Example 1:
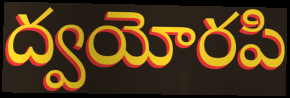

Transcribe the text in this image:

ద్వయోరపి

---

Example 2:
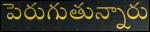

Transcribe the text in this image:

పెరుగుతున్నారు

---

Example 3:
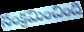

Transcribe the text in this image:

సంక్రమించింది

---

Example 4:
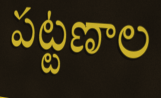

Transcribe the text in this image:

పట్టణాల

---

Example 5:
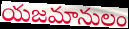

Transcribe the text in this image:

యజమానులం